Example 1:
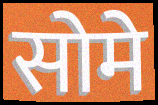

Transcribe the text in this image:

सोमे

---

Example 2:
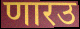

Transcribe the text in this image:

णारउ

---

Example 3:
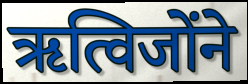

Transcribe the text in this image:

ऋत्विजोंने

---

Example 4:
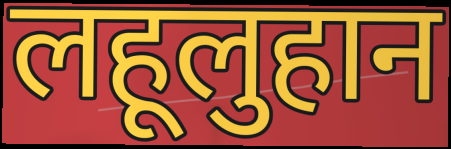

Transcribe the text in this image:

लहूलुहान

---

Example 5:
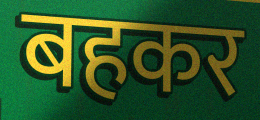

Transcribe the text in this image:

बहकर